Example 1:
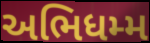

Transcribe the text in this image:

અભિધમ્મ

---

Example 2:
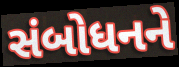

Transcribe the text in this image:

સંબોધનને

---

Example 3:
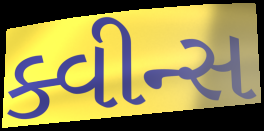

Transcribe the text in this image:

ક્વીન્સ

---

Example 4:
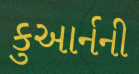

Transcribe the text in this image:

કુઆર્નની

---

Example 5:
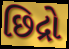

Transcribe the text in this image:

છિદ્રો